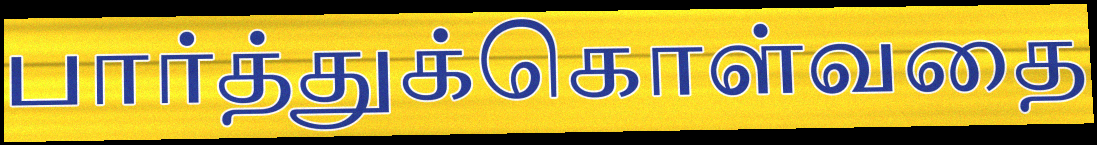
பார்த்துக்கொள்வதை